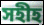
সহীহ